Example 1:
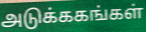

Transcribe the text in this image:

அடுக்ககங்கள்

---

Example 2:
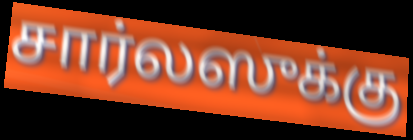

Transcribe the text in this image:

சார்லஸுக்கு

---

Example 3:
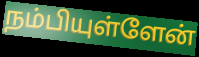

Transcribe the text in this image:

நம்பியுள்ளேன்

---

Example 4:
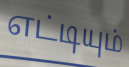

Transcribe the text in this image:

எட்டியும்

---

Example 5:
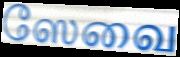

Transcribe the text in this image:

ஸேவை